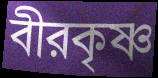
বীরকৃষ্ণ